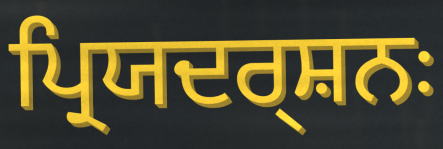
ਪ੍ਰਿਯਦਰ੍ਸ਼ਨਃ